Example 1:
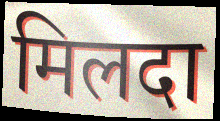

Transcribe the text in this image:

मिलदा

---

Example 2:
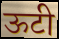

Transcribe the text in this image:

ऊटी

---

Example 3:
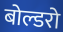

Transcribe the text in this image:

बोल्डरो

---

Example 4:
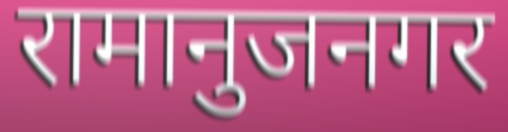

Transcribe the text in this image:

रामानुजनगर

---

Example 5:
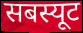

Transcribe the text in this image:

सबस्यूट